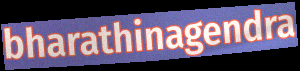
bharathinagendra